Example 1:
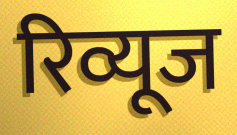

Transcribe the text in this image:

रिव्‍यूज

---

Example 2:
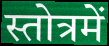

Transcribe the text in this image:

स्तोत्रमें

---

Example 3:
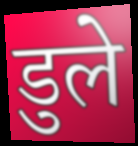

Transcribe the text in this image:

डुले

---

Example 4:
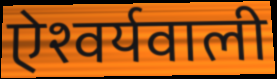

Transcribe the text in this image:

ऐश्वर्यवाली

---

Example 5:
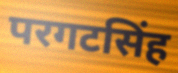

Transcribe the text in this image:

परगटसिंह